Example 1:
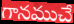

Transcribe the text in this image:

గానముచే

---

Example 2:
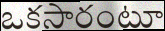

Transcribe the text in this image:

ఒకసారంటూ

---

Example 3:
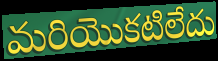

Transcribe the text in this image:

మరియొకటిలేదు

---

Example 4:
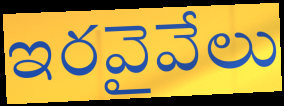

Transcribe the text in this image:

ఇరవైవేలు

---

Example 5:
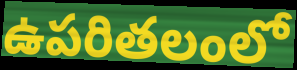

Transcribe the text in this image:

ఉపరితలంలో